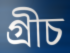
গ্ৰীচ